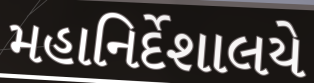
મહાનિર્દેશાલયે